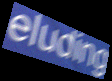
eluding